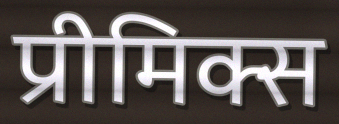
प्रीमिक्स